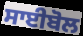
ਸਾਈਬੋਲ